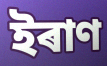
ইৰাণ